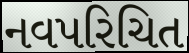
નવપરિચિત